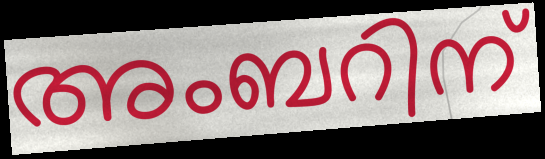
അംബറിന്